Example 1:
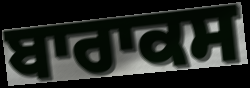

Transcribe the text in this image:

ਬਾਰਾਕਸ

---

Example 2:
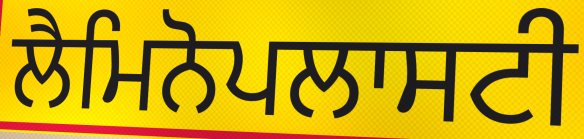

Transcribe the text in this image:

ਲੈਮਿਨੋਪਲਾਸਟੀ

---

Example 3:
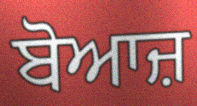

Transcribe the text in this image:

ਬੋਆਜ਼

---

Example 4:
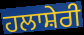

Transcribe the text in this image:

ਹਲਾਸ਼ੇਰੀ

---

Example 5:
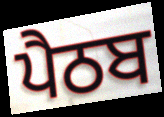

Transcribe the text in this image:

ਪੈਠਬ